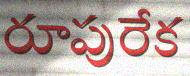
రూపురేక